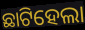
ଛାଟିହେଲା